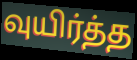
வுயிர்த்த